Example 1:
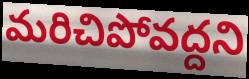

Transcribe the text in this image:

మరిచిపోవద్దని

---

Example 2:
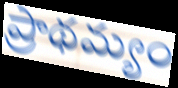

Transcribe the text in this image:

ప్రాథమ్యం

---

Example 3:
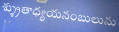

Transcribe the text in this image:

శ్శ్రుతాధ్యయనంబులును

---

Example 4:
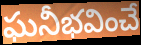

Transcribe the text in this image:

ఘనీభవించే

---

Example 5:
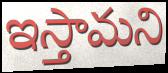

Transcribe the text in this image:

ఇస్తామని